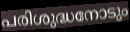
പരിശുദ്ധനോടും